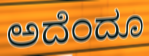
ಅದೆಂದೂ